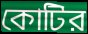
কোটির